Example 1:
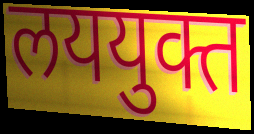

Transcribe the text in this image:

लययुक्त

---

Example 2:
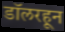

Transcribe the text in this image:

डॉलरहून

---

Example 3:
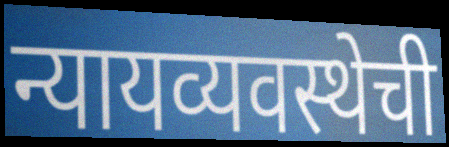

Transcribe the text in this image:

न्यायव्यवस्थेची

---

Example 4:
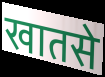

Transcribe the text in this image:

खातसे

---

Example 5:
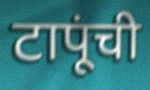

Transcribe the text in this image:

टापूंची